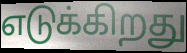
எடுக்கிறது